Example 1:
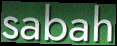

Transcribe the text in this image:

sabah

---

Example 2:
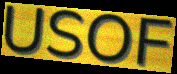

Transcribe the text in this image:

USOF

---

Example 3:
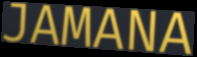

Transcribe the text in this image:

JAMANA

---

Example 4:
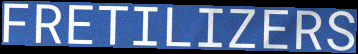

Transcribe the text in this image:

FRETILIZERS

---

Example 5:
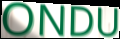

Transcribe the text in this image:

ONDU